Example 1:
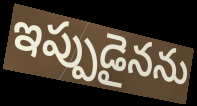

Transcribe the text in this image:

ఇప్పుడైనను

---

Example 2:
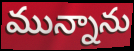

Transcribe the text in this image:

మున్నాను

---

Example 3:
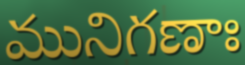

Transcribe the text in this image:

మునిగణాః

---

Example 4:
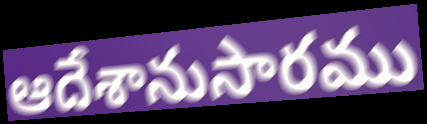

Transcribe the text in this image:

ఆదేశానుసారము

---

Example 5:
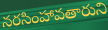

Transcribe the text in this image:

నరసింహావతారుని